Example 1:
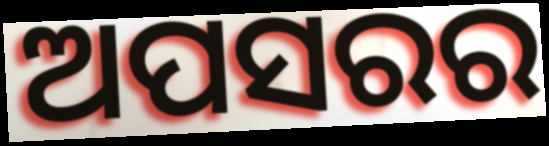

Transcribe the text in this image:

ଅପସରର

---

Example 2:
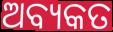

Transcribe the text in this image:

ଅବ୍ୟକତ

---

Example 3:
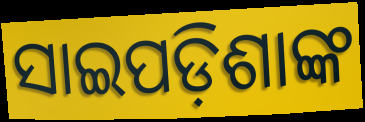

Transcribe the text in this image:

ସାଇପଡ଼ିଶାଙ୍କ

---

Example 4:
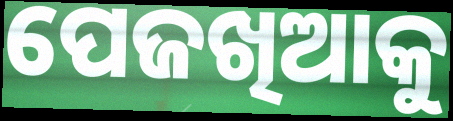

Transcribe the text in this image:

ପେଜଖିଆକୁ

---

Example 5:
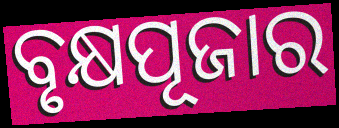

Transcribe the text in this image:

ବୃକ୍ଷପୂଜାର